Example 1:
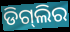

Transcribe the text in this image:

ଡିଗ୍‌ଲିର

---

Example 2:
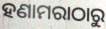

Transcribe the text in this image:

ହଣାମରାଠାରୁ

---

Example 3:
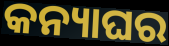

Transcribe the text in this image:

କନ୍ୟାଘର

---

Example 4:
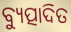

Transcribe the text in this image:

ବ୍ୟୁତ୍ପାଦିତ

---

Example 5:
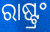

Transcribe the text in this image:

ରାଷ୍ଟ୍ରଂ